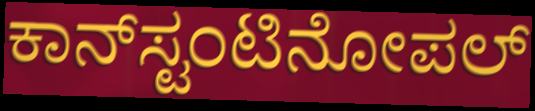
ಕಾನ್‍ಸ್ಟಂಟಿನೋಪಲ್